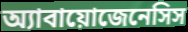
অ্যাবায়োজেনেসিস